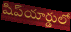
షిప్‌యార్డులో